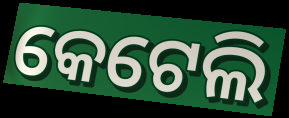
କେଟେଲି